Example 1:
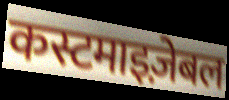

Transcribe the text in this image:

कस्टमाइज़ेबल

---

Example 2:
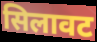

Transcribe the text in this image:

सिलावट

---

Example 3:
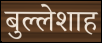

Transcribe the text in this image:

बुल्लेशाह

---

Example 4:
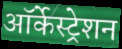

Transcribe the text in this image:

ऑर्केस्ट्रेशन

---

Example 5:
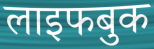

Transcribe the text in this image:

लाइफबुक